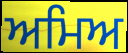
ਅਮਿਅ